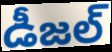
డీజల్